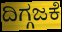
ದಿಗ್ಗಜಕೆ